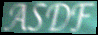
ASDF